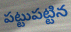
పట్టుపట్టిన